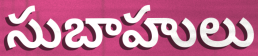
సుబాహులు